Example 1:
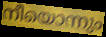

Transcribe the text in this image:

നീയൊന്നും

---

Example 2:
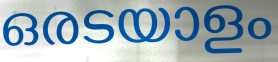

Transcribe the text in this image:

ഒരടയാളം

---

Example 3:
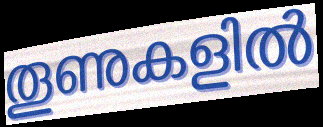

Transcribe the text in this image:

തൂണുകളിൽ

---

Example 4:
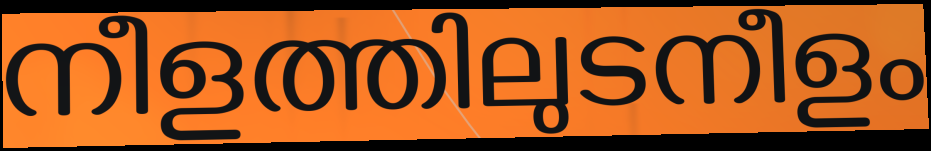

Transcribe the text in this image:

നീളത്തിലുടനീളം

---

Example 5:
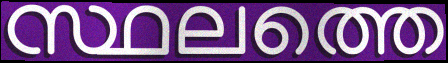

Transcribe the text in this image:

സ്ഥലത്തെ